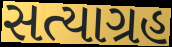
સત્‍યાગ્રહ